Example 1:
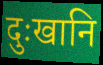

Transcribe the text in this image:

दुःखानि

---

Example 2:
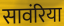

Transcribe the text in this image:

सावंरिया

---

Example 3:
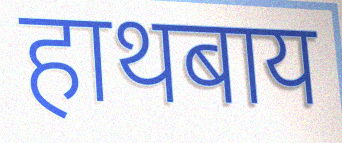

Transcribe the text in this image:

हाथबाय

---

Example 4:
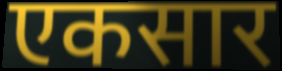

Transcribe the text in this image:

एकसार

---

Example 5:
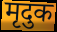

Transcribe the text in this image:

मृदुक